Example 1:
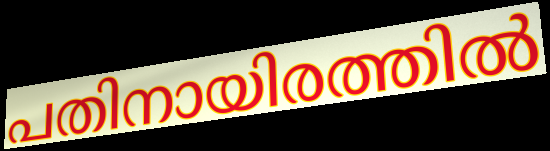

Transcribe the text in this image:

പതിനായിരത്തിൽ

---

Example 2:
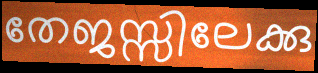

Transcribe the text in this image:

തേജസ്സിലേക്കു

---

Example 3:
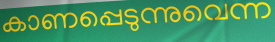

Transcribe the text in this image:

കാണപ്പെടുന്നുവെന്ന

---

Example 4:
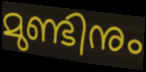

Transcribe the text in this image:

മുണ്ടിനും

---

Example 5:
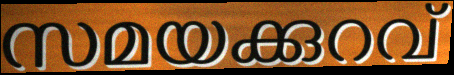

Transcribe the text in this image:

സമയക്കുറവ്